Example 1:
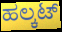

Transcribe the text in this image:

ಹಲ್ಕಟ್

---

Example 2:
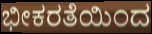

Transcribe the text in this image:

ಭೀಕರತೆಯಿಂದ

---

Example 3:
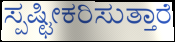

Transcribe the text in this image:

ಸ್ಪಷ್ಟೀಕರಿಸುತ್ತಾರೆ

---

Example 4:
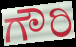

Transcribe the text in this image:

ಗೌರಿ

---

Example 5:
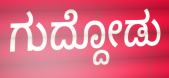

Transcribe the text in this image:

ಗುದ್ದೋಡು